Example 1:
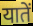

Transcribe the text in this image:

यातें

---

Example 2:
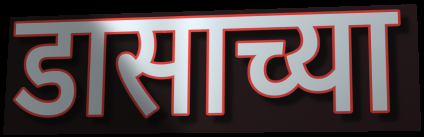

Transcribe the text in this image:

डासाच्या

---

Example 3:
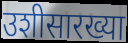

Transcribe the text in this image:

उशीसारख्या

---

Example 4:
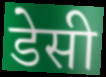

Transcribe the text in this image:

डेसी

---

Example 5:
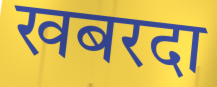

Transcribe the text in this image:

खबरदा